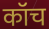
कॉच